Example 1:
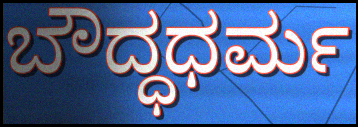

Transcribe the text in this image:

ಬೌದ್ಧಧರ್ಮ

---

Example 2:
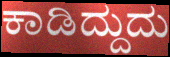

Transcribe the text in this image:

ಕಾಡಿದ್ದುದು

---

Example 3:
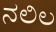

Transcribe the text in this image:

ನಲಿಲ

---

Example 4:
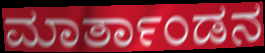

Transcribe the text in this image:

ಮಾರ್ತಾಂಡನ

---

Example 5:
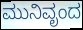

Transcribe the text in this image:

ಮುನಿವೃಂದ